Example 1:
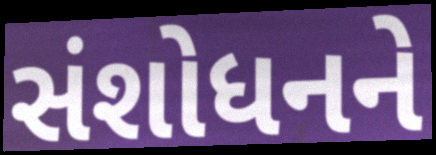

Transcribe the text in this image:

સંશોધનને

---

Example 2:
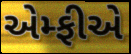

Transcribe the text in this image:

એમ્ફીએ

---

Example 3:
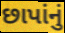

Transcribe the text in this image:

છાપાંનું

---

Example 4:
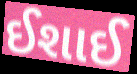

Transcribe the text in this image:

ઈશાઈ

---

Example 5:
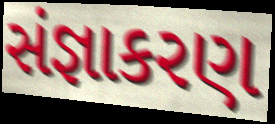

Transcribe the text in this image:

સંજ્ઞાકરણ